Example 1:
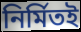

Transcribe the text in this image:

নির্মিতই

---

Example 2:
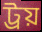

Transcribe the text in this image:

ট্রয়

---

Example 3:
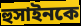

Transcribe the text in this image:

হুসাইনকে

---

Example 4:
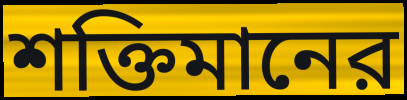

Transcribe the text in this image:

শক্তিমানের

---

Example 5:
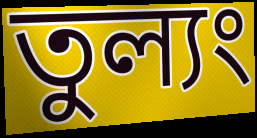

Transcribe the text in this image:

তুল্যং